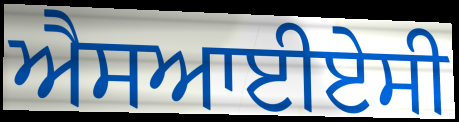
ਐਸਆਈਏਸੀ